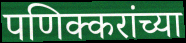
पणिक्करांच्या